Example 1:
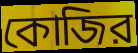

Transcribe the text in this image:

কোজির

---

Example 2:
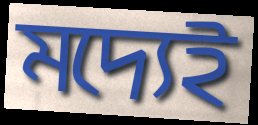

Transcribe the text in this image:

মদ্যেই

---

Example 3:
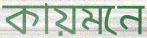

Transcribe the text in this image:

কায়মনে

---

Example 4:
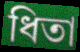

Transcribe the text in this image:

ধিতা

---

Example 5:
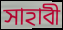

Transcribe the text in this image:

সাহাবী